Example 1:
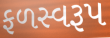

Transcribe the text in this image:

ફળસ્વરૂપ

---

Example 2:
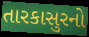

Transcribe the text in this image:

તારકાસુરનો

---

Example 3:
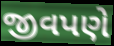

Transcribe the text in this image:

જીવપણે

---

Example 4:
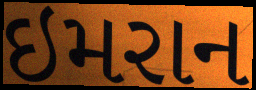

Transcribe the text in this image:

ઇમરાન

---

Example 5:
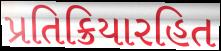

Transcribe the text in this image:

પ્રતિક્રિયારહિત